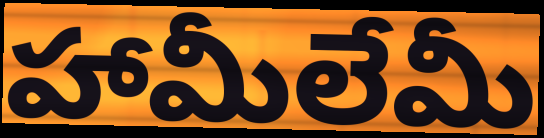
హామీలేమీ